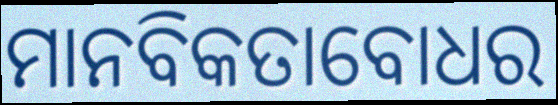
ମାନବିକତାବୋଧର